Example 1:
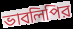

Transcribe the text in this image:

ভাবলিপির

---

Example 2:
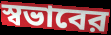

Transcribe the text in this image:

স্বভাবের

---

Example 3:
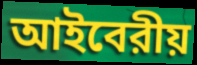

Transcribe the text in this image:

আইবেরীয়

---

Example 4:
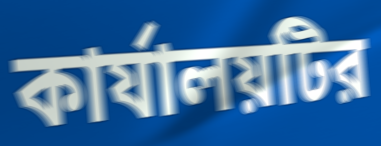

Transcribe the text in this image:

কার্যালয়টির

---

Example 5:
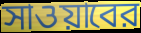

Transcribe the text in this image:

সাওয়াবের